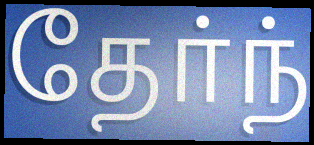
தேர்ந்